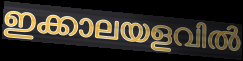
ഇക്കാലയളവിൽ